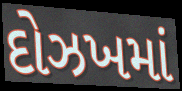
દોઝખમાં